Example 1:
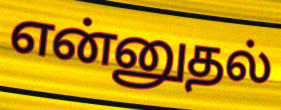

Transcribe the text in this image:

என்னுதல்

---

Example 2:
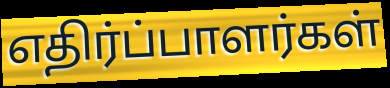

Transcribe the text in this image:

எதிர்ப்பாளர்கள்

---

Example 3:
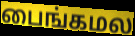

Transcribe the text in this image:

பைங்கமல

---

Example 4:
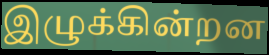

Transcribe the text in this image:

இழுக்கின்றன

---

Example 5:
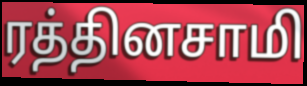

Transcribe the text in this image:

ரத்தினசாமி